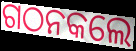
ଗଠନକଲେ